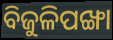
ବିଜୁଳିପଙ୍ଖା